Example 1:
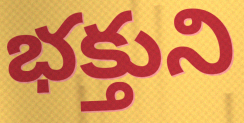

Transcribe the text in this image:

భక్తుని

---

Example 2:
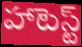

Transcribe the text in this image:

హాటెస్ట్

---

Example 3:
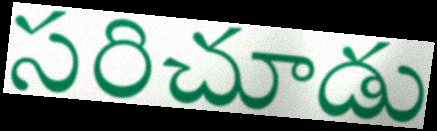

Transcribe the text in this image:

సరిచూడు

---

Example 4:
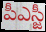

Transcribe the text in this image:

పీఎస్జీ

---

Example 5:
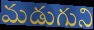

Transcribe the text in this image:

మడుగుని